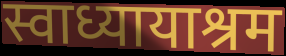
स्वाध्यायाश्रम